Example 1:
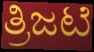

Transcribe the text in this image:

ತ್ರಿಜಟೆ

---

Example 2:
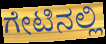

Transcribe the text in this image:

ಗೇಟಿನಲ್ಲಿ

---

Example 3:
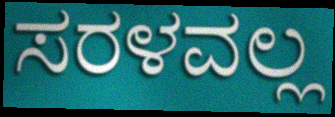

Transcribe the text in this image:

ಸರಳವಲ್ಲ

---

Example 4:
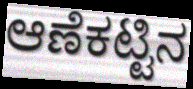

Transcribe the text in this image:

ಆಣೆಕಟ್ಟಿನ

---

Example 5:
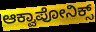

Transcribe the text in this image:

ಆಕ್ವಾಪೋನಿಕ್ಸ್